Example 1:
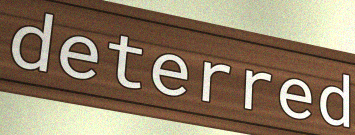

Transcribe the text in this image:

deterred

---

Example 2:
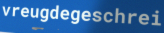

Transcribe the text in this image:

vreugdegeschrei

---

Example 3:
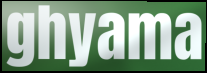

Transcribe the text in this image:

ghyama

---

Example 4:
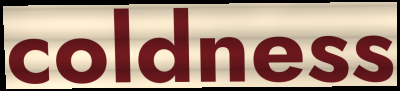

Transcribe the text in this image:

coldness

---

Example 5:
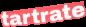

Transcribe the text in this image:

tartrate